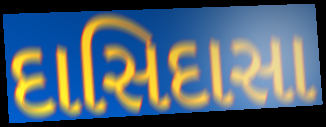
દાસિદાસા